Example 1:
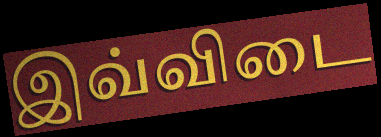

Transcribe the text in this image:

இவ்விடை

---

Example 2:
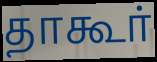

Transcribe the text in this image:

தாகூர்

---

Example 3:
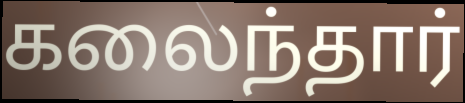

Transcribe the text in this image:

கலைந்தார்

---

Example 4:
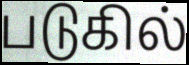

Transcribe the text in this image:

படுகில்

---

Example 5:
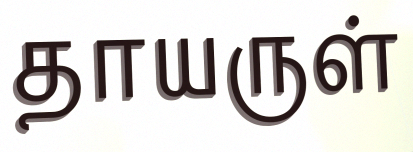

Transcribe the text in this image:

தாயருள்